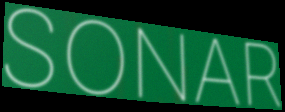
SONAR